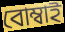
বোম্বাই